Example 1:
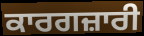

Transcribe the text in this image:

ਕਾਰਗਜ਼ਾਰੀ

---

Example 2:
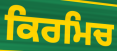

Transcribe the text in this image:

ਕਿਰਮਿਚ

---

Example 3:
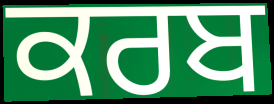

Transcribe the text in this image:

ਕਰਬ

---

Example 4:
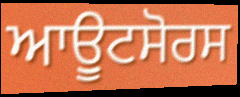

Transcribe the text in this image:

ਆਉੂਟਸੋਰਸ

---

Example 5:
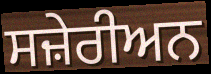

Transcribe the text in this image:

ਸਜ਼ੇਰੀਅਨ